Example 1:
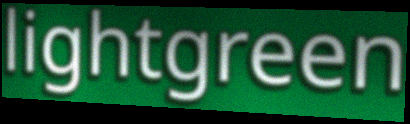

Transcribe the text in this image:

lightgreen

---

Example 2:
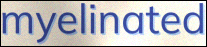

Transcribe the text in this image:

myelinated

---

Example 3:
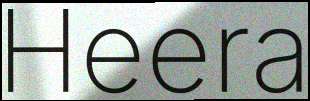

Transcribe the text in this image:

Heera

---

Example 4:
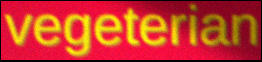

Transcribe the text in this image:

vegeterian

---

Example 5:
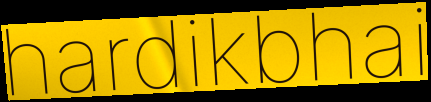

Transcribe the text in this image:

hardikbhai